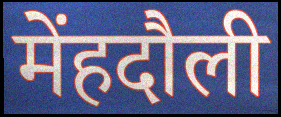
मेंहदौली